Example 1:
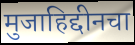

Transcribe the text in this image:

मुजाहिद्दीनचा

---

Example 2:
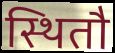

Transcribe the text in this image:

स्थितौ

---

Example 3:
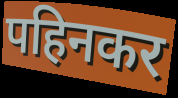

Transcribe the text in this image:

पहिनकर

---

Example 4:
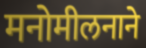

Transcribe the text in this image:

मनोमीलनाने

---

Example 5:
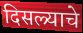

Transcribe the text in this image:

दिसल्याचे